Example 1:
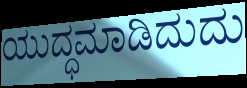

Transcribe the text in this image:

ಯುದ್ಧಮಾಡಿದುದು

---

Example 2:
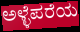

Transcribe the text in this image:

ಅಳ್ಳೆಪರೆಯ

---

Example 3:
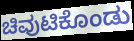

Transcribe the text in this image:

ಚಿವುಟಿಕೊಂಡು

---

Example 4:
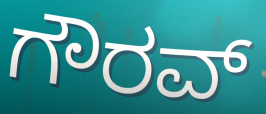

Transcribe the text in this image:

ಗೌರವ್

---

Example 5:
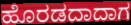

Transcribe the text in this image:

ಹೊರಡದಾದಾಗ